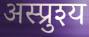
अस्प्रुश्य